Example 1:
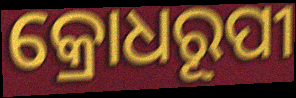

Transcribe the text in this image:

କ୍ରୋଧରୂପୀ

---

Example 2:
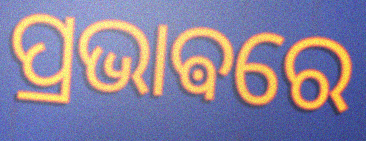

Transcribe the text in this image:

ପ୍ରଭାଵରେ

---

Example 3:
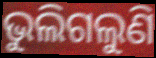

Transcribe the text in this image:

ଭୁଲିଗଲୁଣି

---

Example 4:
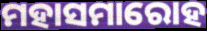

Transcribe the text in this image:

ମହାସମାରୋହ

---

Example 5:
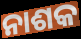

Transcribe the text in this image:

ନାଶକ